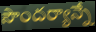
సౌందర్యాన్నే